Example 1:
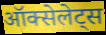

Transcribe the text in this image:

ऑक्सेलेट्स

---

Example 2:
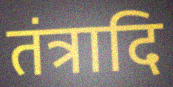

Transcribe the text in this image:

तंत्रादि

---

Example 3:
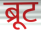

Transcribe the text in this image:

ब्रूट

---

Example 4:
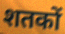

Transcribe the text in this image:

शतकों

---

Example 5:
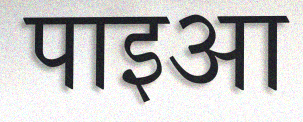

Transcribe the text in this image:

पाइआ